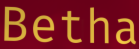
Betha